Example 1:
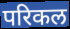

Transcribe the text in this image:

परिकल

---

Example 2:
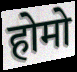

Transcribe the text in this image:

होमो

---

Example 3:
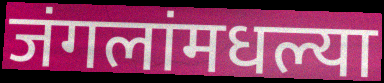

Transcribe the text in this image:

जंगलांमधल्या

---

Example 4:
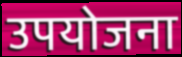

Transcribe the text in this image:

उपयोजना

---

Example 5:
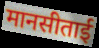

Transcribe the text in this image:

मानसीताई